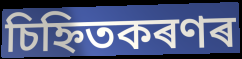
চিহ্নিতকৰণৰ